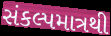
સંકલ્પમાત્રથી